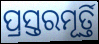
ପ୍ରସ୍ତରମୂର୍ତ୍ତି